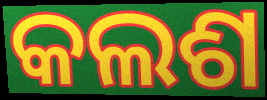
କଲଶ